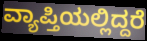
ವ್ಯಾಪ್ತಿಯಲ್ಲಿದ್ದರೆ